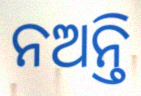
ନଅନ୍ତି